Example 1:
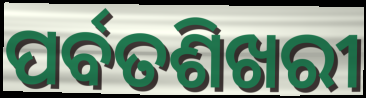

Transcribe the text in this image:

ପର୍ବତଶିଖରୀ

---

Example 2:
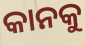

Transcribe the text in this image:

କାନକୁ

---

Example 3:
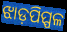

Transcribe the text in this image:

ଝାଡ଼ପିପ୍ପଳ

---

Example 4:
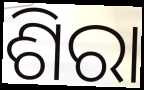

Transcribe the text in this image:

ଶିରା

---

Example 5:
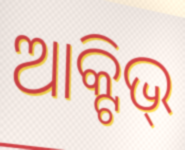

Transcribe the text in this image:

ଆକ୍ଟିଭ୍